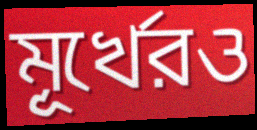
মূর্খেরও